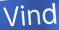
Vind